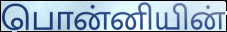
பொன்னியின்